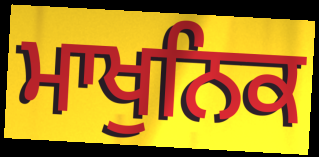
ਮਾਖੁਨਿਕ